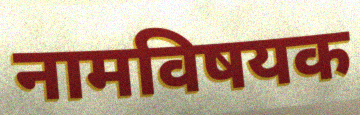
नामविषयक